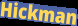
Hickman